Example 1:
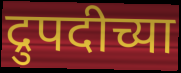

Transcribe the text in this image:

द्रुपदीच्या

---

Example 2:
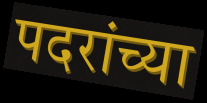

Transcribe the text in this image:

पदरांच्या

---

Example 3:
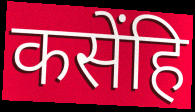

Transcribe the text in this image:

कसेंहि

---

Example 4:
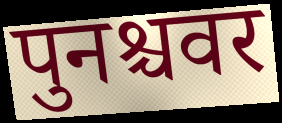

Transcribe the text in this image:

पुनश्चवर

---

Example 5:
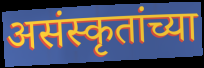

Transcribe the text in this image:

असंस्कृतांच्या